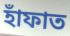
হাঁফাত